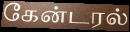
கேன்டரல்